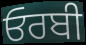
ਓਰਬੀ